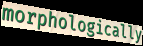
morphologically